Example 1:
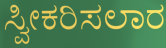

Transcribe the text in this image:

ಸ್ವೀಕರಿಸಲಾರ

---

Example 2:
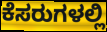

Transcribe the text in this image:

ಕೆಸರುಗಳಲ್ಲಿ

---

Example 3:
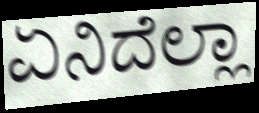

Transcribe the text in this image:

ಏನಿದೆಲ್ಲಾ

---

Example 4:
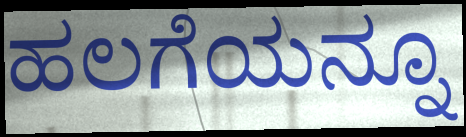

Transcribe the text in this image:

ಹಲಗೆಯನ್ನೂ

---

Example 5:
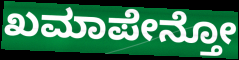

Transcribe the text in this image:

ಖಮಾಪೇನ್ತೋ